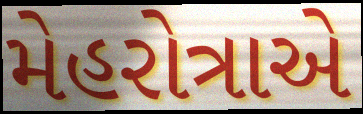
મેહરોત્રાએ